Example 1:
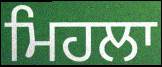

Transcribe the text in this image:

ਮਿਹਲਾ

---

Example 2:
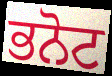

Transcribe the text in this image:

ਭਨੋਟ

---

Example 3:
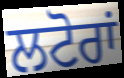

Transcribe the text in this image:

ਲਟੋਰਾਂ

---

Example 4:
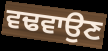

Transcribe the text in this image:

ਵਢਵਾਉਣ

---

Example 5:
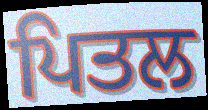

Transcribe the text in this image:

ਪਿਤਲ